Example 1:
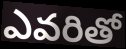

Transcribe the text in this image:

ఎవరితో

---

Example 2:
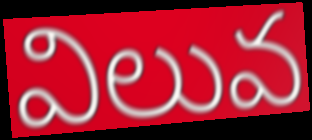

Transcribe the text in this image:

విలువ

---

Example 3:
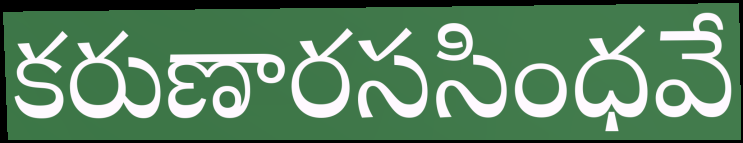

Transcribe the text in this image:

కరుణారససింధవే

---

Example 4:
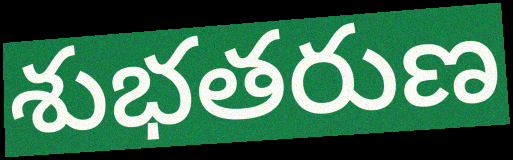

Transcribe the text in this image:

శుభతరుణ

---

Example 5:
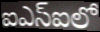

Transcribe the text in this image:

ఐఎస్ఐలో